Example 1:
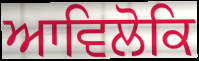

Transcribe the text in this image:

ਆਵਿਲੋਕਿ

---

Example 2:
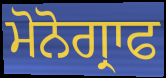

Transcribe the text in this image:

ਮੋਨੋਗ੍ਰਾਫ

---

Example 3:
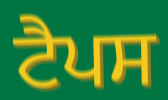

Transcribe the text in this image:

ਟੈਪਸ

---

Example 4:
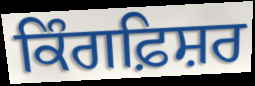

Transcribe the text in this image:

ਕਿੰਗਫ਼ਿਸ਼ਰ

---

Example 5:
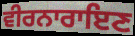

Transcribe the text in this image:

ਵੀਰਨਾਰਾਇਣ